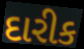
દારીક